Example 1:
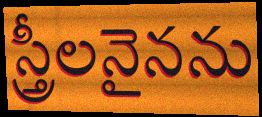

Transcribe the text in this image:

స్త్రీలనైనను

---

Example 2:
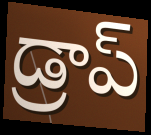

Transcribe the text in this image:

డ్రాప్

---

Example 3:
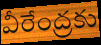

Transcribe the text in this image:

వీరేంద్రకు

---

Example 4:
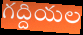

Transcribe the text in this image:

గద్దియల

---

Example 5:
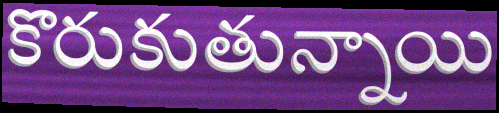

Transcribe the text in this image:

కొరుకుతున్నాయి